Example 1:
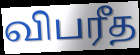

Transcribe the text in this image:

விபரீத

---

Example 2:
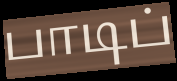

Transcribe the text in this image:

பாடிப்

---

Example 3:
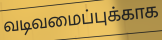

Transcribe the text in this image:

வடிவமைப்புக்காக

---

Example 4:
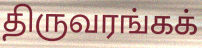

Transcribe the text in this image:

திருவரங்கக்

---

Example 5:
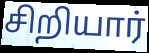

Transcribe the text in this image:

சிறியார்